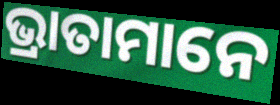
ଭ୍ରାତାମାନେ